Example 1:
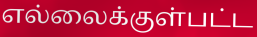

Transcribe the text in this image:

எல்லைக்குள்பட்ட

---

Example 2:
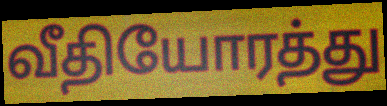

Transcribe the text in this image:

வீதியோரத்து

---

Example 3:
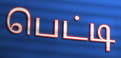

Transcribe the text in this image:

பெட்டி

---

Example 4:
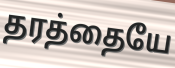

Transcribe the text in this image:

தரத்தையே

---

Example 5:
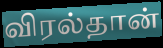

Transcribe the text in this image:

விரல்தான்